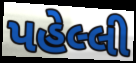
પહેલ્લી